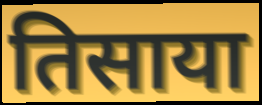
तिसाया